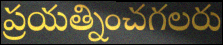
ప్రయత్నించగలరు